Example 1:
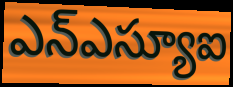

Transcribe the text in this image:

ఎన్ఎస్యూఐ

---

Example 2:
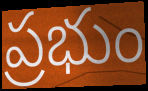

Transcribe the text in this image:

ప్రభుం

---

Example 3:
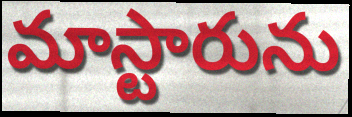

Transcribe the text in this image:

మాస్టారును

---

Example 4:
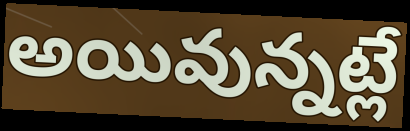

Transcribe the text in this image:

అయివున్నట్లే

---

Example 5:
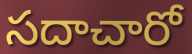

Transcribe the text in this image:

సదాచారో